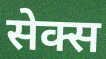
सेक्स